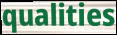
qualities